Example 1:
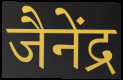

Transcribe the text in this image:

जैनेंद्र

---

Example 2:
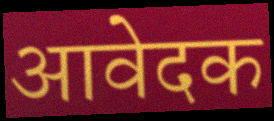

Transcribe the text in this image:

आवेदक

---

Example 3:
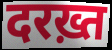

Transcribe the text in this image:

दरख़्त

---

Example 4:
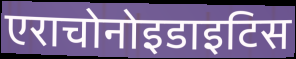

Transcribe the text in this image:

एराचोनोइडाइटिस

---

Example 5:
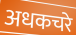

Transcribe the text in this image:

अधकचरे